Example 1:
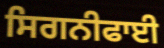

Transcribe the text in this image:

ਸਿਗਨੀਫਾਈ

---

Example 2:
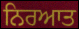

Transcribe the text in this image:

ਨਿਰਆਤ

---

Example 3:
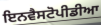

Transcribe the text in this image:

ਇਨਵੈਸਟੋਪੀਡੀਆ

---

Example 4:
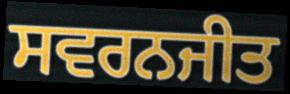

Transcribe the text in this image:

ਸਵਰਨਜੀਤ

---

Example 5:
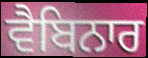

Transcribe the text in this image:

ਵੈਬਿਨਾਰ